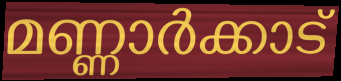
മണ്ണാർക്കാട്